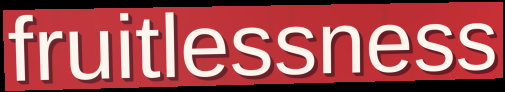
fruitlessness